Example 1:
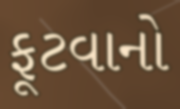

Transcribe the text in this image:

ફૂટવાનો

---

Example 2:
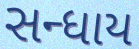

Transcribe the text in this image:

સન્ધાય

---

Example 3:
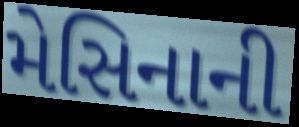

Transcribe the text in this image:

મેસિનાની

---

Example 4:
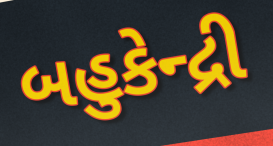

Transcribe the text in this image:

બહુકેન્દ્રી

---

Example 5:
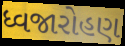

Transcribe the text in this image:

ધ્વજારોહણ